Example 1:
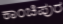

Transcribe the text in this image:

ಕಾಂಚಿಪುರ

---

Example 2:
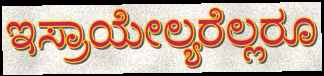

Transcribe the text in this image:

ಇಸ್ರಾಯೇಲ್ಯರೆಲ್ಲರೂ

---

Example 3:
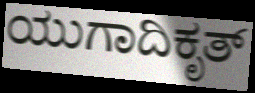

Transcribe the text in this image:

ಯುಗಾದಿಕೃತ್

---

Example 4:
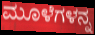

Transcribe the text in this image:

ಮೂಳೆಗಳನ್ನ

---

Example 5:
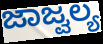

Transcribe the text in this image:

ಜಾಜ್ವಲ್ಯ